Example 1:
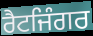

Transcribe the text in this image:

ਰੈਟਜਿੰਗਰ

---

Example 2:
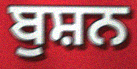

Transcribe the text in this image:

ਬੁਸ਼ਨ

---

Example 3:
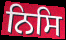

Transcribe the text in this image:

ਨਿਸਿ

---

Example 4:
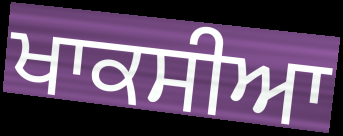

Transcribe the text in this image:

ਖਾਕਸੀਆ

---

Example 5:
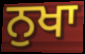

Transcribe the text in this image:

ਨੁਖਾ